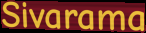
Sivarama